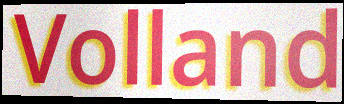
Volland